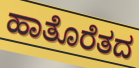
ಹಾತೊರೆತದ